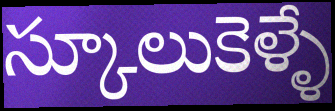
స్కూలుకెళ్ళే